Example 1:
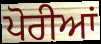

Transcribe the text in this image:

ਪੋਰੀਆਂ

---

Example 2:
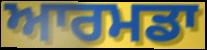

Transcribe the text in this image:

ਆਰਮਡਾ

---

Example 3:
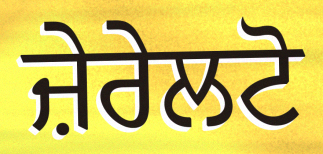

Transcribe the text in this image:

ਜ਼ੇਰੇਲਟੋ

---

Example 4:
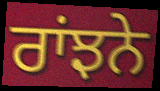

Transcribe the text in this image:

ਰਾਂਝਨੇ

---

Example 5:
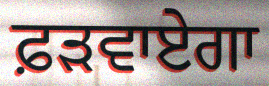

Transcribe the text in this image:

ਫ਼ੜਵਾਏਗਾ